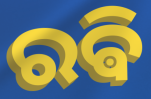
ରଵି